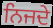
ਨਿਜਦੇ